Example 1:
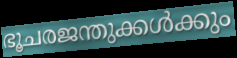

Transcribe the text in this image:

ഭൂചരജന്തുക്കൾക്കും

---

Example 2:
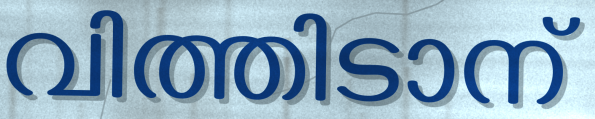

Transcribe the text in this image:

വിത്തിടാന്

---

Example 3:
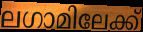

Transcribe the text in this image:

ലഗാമിലേക്ക്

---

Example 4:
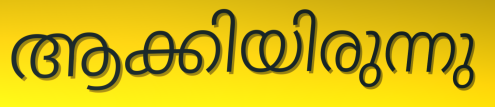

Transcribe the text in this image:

ആക്കിയിരുന്നു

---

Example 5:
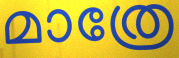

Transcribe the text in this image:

മാത്രേ